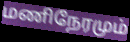
மணிநேரமும்